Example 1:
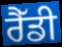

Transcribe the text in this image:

ਰੈੱਡੀ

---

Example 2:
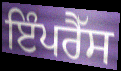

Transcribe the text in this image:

ਇੰਪਰੈੱਸ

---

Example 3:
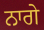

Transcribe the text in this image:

ਨਾਗੇ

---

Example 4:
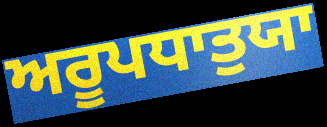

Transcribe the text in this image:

ਅਰੂਪਧਾਤੁਯਾ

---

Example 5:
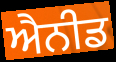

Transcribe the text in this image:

ਐਨੀਡ